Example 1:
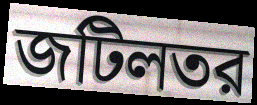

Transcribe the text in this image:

জটিলতর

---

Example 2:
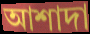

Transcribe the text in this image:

আশাদা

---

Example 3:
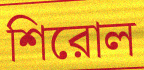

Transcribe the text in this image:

শিরোল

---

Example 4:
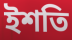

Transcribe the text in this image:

ইশতি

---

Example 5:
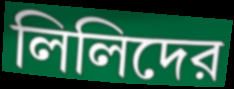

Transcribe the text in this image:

লিলিদের